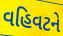
વહિવટને